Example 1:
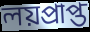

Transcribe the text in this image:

লয়প্রাপ্ত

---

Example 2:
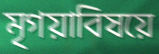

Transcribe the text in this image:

মৃগয়াবিষয়ে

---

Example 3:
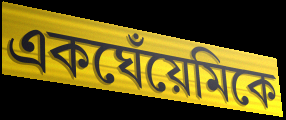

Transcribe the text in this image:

একঘেঁয়েমিকে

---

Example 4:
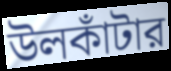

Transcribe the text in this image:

উলকাঁটার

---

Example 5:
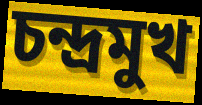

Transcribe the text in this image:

চন্দ্রমুখ